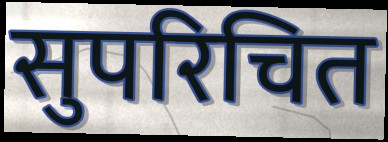
सुपरिचित